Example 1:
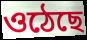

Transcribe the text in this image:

ওঠেছে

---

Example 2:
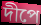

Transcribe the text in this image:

দীপে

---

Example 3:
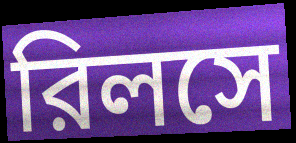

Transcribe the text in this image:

রিলসে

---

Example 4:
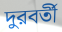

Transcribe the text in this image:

দুরবর্তী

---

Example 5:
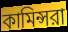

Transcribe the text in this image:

কামিন্সরা